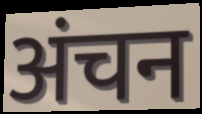
अंचन